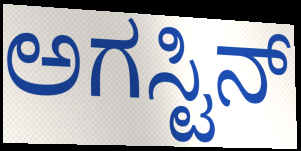
ಅಗಸ್ಟಿನ್